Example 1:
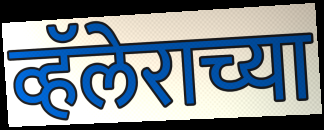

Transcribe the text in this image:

व्हॅलेराच्या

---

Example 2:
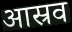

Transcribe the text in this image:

आस्रव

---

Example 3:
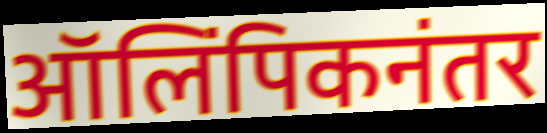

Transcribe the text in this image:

ऑलिंपिकनंतर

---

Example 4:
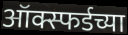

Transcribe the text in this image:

ऑक्स्फर्डच्या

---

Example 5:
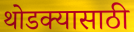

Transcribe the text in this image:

थोडक्यासाठी